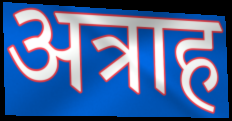
अत्राह